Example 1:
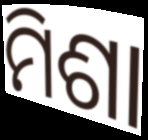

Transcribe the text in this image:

ମିଶା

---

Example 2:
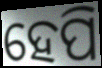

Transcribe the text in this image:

ହେପି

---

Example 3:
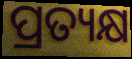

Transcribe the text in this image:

ପ୍ରତ୍ୟକ୍ଷ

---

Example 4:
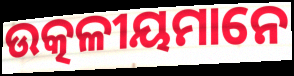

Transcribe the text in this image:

ଉତ୍କଳୀୟମାନେ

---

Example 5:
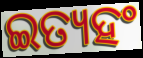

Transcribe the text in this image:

ଇତ୍ୟହଂ